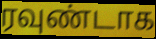
ரவுண்டாக